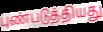
புண்படுத்தியது